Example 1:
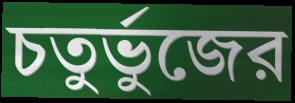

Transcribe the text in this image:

চতুর্ভুজের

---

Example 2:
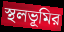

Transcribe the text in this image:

স্থলভূমির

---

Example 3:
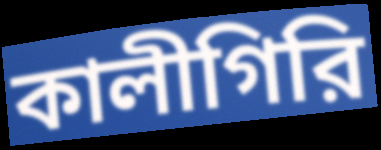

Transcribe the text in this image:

কালীগিরি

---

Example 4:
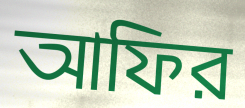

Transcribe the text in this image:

আফির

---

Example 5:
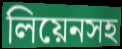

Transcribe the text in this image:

লিয়েনসহ